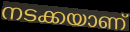
നടക്കയാണ്